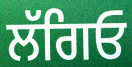
ਲੱਗਿਓ